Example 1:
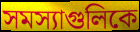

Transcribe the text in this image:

সমস্যাগুলিকে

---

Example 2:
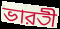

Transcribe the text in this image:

ভারতী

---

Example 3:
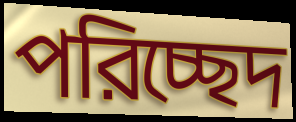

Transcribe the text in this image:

পরিচ্ছেদ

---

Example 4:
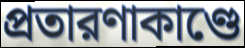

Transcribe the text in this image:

প্রতারণাকাণ্ডে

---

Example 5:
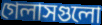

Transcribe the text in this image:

গেলাসগুলো